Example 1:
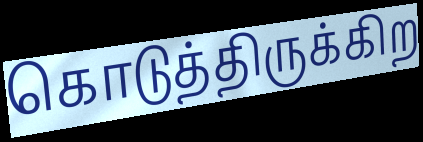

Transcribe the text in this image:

கொடுத்திருக்கிற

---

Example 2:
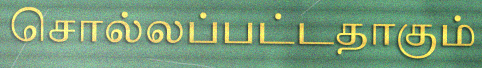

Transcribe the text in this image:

சொல்லப்பட்டதாகும்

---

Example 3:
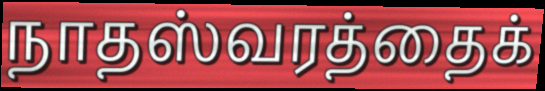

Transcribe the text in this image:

நாதஸ்வரத்தைக்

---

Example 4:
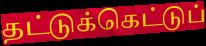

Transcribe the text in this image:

தட்டுக்கெட்டுப்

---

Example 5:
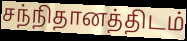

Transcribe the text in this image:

சந்நிதானத்திடம்